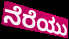
ನೆರೆಯು